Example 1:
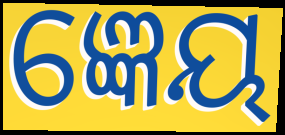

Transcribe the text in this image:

ଜ୍ଞେୟ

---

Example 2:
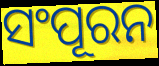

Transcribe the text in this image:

ସଂପୂରନ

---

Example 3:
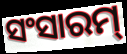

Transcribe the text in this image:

ସଂସାରମ୍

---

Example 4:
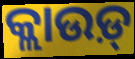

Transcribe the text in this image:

କ୍ଲାଉଡ଼୍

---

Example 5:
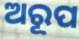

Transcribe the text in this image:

ଅରୂପ